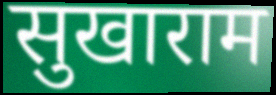
सुखाराम